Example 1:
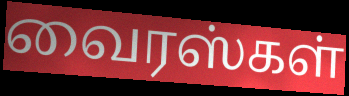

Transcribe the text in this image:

வைரஸ்கள்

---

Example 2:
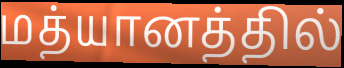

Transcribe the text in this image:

மத்யானத்தில்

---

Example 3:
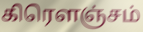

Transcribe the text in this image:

கிரௌஞ்சம்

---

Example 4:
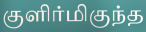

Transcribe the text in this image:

குளிர்மிகுந்த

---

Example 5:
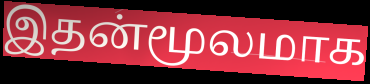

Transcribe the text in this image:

இதன்மூலமாக